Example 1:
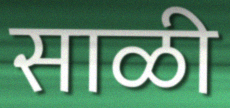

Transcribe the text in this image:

साळी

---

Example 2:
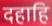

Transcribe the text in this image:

दहाहि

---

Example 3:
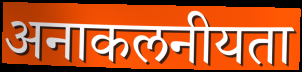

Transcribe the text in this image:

अनाकलनीयता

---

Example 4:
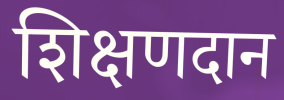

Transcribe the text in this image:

शिक्षणदान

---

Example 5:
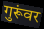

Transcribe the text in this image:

गुरूंवर